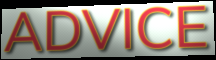
ADVICE